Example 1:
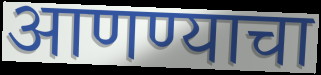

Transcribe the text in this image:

आणण्याचा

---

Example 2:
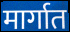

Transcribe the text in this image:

मार्गात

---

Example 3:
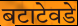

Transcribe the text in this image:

बटाटेवडे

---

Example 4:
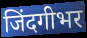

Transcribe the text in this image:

जिंदगीभर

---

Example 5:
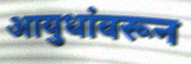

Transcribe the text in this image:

आयुधांवरून